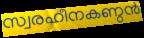
സ്വരഹീനകണ്ഠൻ